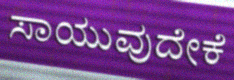
ಸಾಯುವುದೇಕೆ